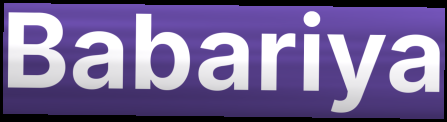
Babariya